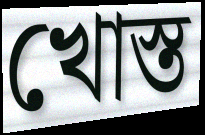
খোস্ত